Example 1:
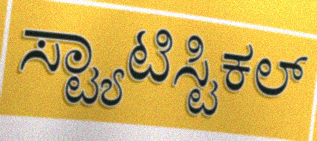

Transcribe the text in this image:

ಸ್ಟ್ಯಾಟಿಸ್ಟಿಕಲ್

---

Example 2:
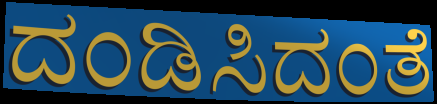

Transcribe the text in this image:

ದಂಡಿಸಿದಂತೆ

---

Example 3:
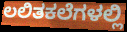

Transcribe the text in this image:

ಲಲಿತಕಲೆಗಳಲ್ಲಿ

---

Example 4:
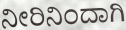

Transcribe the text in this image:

ನೀರಿನಿಂದಾಗಿ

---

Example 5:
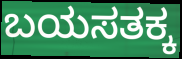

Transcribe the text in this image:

ಬಯಸತಕ್ಕ